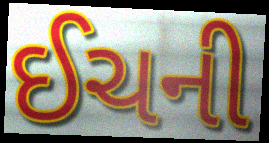
ઈચની